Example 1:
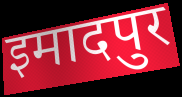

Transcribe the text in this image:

इमादपुर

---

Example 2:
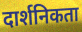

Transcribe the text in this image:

दार्शनिकता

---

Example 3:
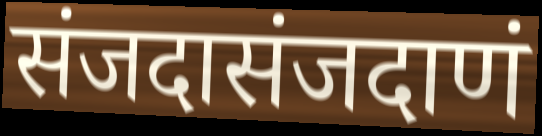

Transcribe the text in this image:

संजदासंजदाणं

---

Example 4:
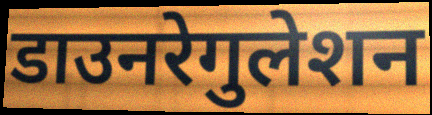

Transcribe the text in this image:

डाउनरेगुलेशन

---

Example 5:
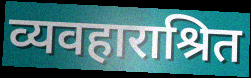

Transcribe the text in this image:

व्यवहाराश्रित